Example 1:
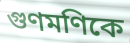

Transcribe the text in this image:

গুণমণিকে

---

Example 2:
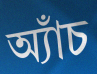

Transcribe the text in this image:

অ্যাঁচ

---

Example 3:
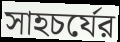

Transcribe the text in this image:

সাহচর্যের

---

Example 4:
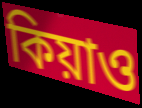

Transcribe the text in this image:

কিয়াও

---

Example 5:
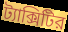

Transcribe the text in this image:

ট্যাক্সিটির